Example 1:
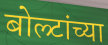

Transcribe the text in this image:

बोल्टांच्या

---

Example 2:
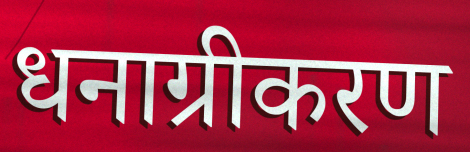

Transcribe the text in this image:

धनाग्रीकरण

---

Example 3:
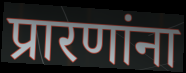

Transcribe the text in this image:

प्रारणांना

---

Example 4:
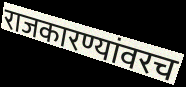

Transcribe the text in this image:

राजकारण्यांवरच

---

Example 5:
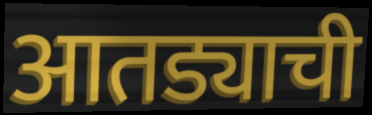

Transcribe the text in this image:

आतड्याची